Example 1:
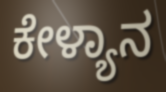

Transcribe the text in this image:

ಕೇಳ್ಯಾನ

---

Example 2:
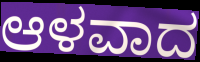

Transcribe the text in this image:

ಆಳವಾದ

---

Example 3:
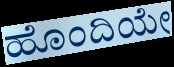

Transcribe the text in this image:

ಹೊಂದಿಯೇ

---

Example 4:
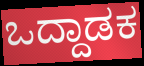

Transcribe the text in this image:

ಒದ್ದಾಡಕ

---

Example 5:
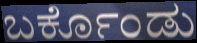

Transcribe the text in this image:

ಬರ್ಕೊಂಡು